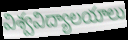
విశ్వవిద్యాలయాలు